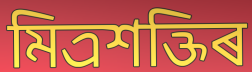
মিত্ৰশক্তিৰ